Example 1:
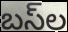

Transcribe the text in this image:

బస్‌ల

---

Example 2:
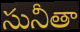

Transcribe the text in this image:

సునీతా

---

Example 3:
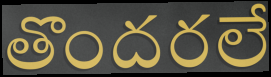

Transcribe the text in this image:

తొందరలే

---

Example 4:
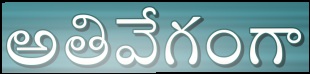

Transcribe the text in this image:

అతివేగంగా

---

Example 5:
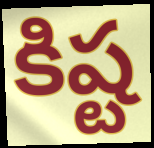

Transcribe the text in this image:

కిష్ట